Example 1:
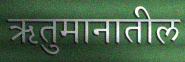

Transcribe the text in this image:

ऋतुमानातील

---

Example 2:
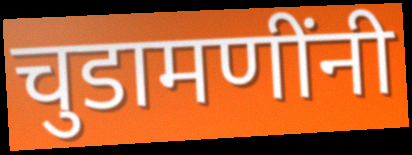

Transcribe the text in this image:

चुडामणींनी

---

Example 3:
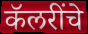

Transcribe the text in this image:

कॅलरींचे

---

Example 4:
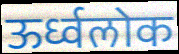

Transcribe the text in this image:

ऊर्ध्वलोक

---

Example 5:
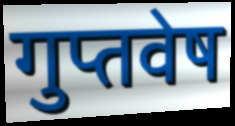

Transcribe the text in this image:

गुप्तवेष